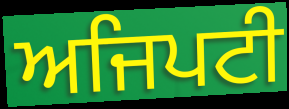
ਅਜਿਪਟੀ